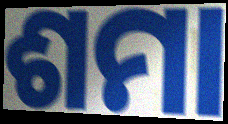
ଶମା